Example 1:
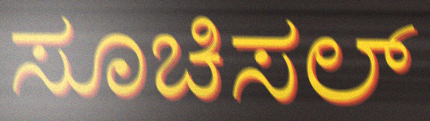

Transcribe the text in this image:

ಸೂಚಿಸಲ್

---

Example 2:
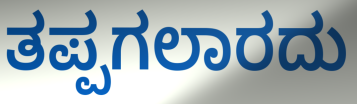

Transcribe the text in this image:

ತಪ್ಪಗಲಾರದು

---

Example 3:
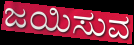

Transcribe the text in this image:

ಜಯಿಸುವ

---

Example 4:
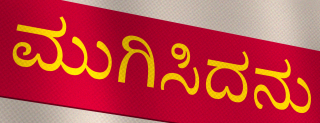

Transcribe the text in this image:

ಮುಗಿಸಿದನು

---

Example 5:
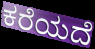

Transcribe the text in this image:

ಕರೆಯದೆ